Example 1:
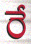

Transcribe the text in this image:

రే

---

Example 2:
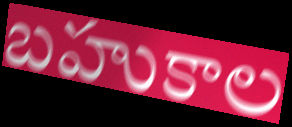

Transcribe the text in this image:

బహుకాల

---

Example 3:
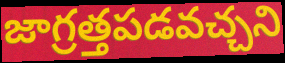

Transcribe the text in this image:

జాగ్రత్తపడవచ్చని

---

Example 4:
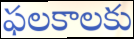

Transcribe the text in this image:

ఫలకాలకు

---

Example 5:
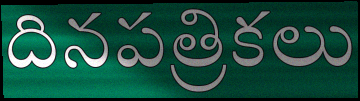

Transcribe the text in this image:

దినపత్రికలు